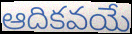
ఆదికవయే